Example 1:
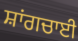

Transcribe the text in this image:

ਸ਼ਾਂਗਚਾਈ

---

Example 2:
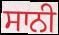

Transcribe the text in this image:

ਸਾਨੀ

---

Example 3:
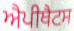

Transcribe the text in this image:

ਐਪੀਥੈਟਸ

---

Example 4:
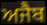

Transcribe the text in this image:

ਅਜੈਬ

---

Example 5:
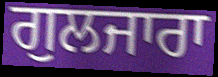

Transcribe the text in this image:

ਗੁਲਜਾਰਾ